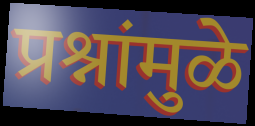
प्रश्नांमुळे